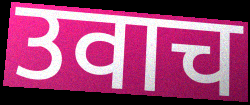
उवाच